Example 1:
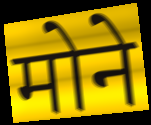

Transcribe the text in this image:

मोने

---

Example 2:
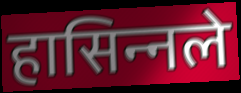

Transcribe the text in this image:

हासिन्नले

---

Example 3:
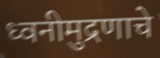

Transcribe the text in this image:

ध्वनीमुद्रणाचे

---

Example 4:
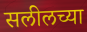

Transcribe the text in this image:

सलीलच्या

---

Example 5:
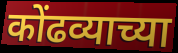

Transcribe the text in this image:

कोंढव्याच्या